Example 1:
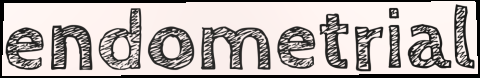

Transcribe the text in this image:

endometrial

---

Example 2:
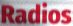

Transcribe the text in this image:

Radios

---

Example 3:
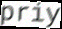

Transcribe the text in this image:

priy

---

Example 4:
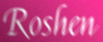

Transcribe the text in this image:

Roshen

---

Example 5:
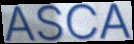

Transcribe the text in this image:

ASCA